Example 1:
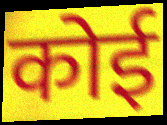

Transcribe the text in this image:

कोई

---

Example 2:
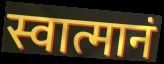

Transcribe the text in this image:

स्वात्मानं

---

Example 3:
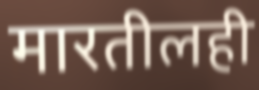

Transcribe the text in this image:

मारतीलही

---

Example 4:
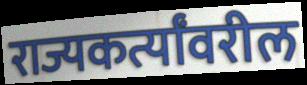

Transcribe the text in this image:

राज्यकर्त्यांवरील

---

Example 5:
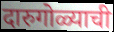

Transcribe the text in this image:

दारुगोळ्याची